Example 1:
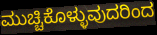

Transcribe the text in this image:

ಮುಚ್ಚಿಕೊಳ್ಳುವುದರಿಂದ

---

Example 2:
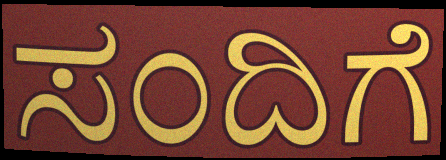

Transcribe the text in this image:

ಸಂದಿಗೆ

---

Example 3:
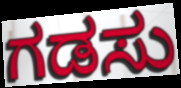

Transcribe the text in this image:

ಗಡಸು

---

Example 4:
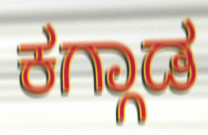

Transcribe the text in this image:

ಕಗ್ಗಾಡ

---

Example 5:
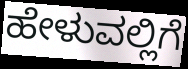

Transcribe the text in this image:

ಹೇಳುವಲ್ಲಿಗೆ